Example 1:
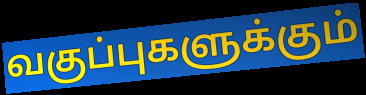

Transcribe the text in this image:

வகுப்புகளுக்கும்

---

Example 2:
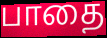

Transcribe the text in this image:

பாதை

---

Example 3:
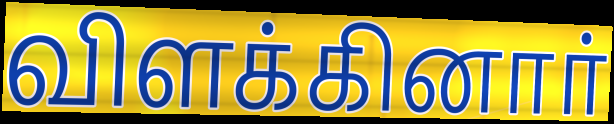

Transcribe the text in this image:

விளக்கினார்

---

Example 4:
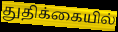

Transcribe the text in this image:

துதிக்கையில்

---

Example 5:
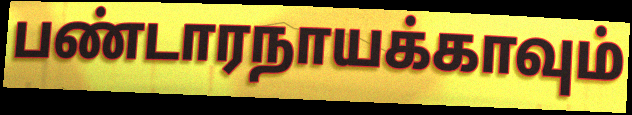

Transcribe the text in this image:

பண்டாரநாயக்காவும்